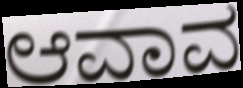
ಆವಾವ